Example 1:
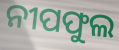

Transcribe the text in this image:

ନୀପଫୁଲ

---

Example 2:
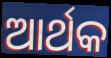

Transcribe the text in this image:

ଆର୍ଥକ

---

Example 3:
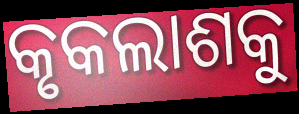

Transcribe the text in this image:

କୃକଲାଶକୁ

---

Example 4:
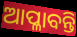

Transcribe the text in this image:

ଆପ୍ଳାବନ୍ତି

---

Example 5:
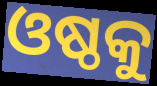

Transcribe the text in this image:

ଓଷ୍ଠକୁ